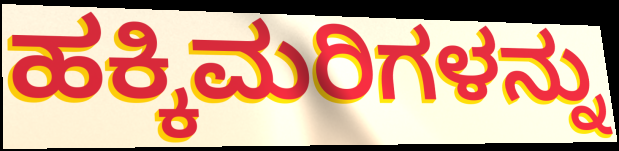
ಹಕ್ಕಿಮರಿಗಳನ್ನು